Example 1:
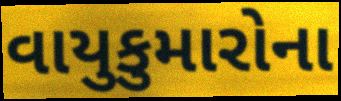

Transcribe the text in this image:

વાયુકુમારોના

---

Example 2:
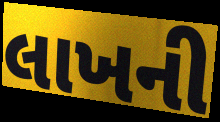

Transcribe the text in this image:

લાખની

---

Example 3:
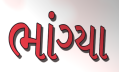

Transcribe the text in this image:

ભાંગ્યા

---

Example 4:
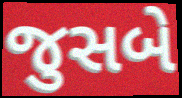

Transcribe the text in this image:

જુસબે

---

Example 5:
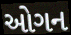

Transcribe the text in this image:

ઓગન